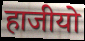
हाजीयो